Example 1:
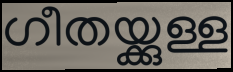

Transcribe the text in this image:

ഗീതയ്ക്കുള്ള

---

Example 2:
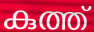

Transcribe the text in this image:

കുത്ത്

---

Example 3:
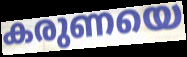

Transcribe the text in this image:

കരുണയെ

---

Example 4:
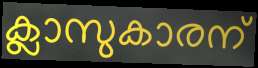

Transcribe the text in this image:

ക്ലാസുകാരന്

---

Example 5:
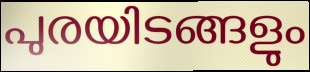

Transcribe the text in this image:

പുരയിടങ്ങളും